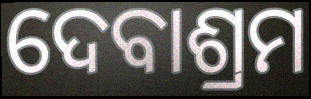
ଦେବାଶ୍ରମ